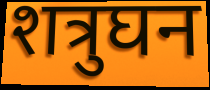
शत्रुघन